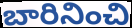
బారినించి